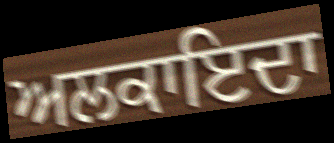
ਅਲਕਾਇਦਾ